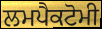
ਲਮਪੈਕਟੋਮੀ